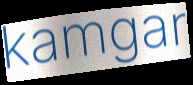
kamgar